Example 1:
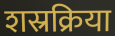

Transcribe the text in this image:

शस्रक्रिया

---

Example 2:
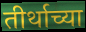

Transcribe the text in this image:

तीर्थाच्या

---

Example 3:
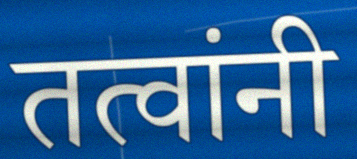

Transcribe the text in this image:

तत्वांनी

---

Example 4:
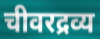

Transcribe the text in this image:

चीवरद्रव्य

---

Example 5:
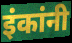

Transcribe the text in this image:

इंकांनी